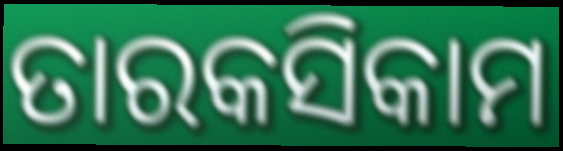
ତାରକସିକାମ